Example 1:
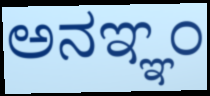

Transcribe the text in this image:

ಅನಞ್ಞಂ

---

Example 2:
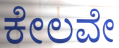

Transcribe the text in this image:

ಕೇಲವೇ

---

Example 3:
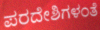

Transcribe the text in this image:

ಪರದೇಶಿಗಳಂತೆ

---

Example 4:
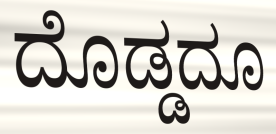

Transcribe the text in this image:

ದೊಡ್ಡದೂ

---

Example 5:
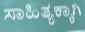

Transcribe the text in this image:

ಸಾಹಿತ್ಯಕ್ಕಾಗಿ